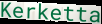
Kerketta